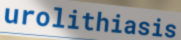
urolithiasis